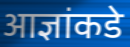
आज्ञांकडे